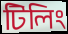
টিলিং